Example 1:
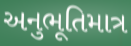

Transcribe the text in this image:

અનુભૂતિમાત્ર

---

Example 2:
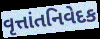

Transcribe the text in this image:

વૃત્તાંતનિવેદક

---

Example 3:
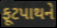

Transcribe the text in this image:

ફૂટપાથને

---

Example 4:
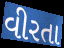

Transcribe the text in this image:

વીરતા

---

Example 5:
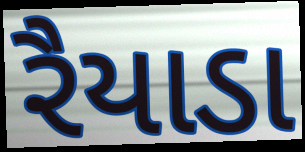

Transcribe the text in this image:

રૈયાડા